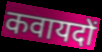
कवायदों